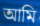
আমি